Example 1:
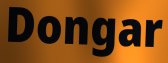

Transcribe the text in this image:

Dongar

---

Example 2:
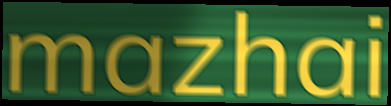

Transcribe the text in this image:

mazhai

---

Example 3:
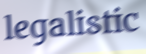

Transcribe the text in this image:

legalistic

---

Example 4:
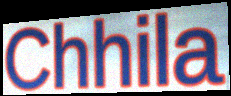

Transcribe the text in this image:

Chhila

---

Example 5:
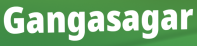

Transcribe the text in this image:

Gangasagar